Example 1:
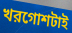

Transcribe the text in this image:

খরগোশটাই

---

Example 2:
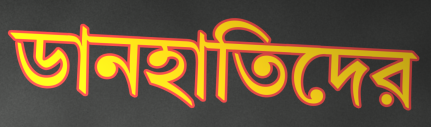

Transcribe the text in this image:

ডানহাতিদের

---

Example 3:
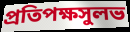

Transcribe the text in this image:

প্রতিপক্ষসুলভ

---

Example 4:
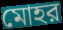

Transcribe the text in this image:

মোহর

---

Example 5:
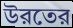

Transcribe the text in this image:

উরতের